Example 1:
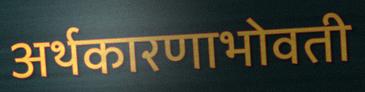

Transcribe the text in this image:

अर्थकारणाभोवती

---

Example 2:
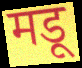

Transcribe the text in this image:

मडू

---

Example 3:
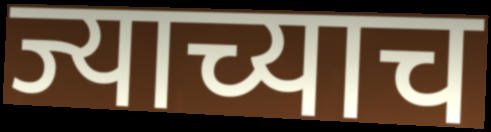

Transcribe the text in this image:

ज्याच्याच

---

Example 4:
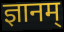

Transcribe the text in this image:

ज्ञानम्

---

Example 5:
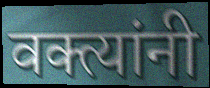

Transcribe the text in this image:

वक्त्यांनी